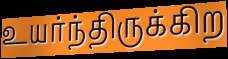
உயர்ந்திருக்கிற